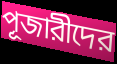
পূজারীদের